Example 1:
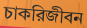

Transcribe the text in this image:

চাকরিজীবন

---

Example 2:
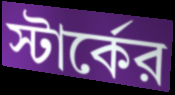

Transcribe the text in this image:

স্টার্কের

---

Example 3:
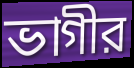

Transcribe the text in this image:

ভাগীর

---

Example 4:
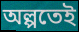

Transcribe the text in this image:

অল্পতেই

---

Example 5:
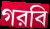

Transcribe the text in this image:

গরবি